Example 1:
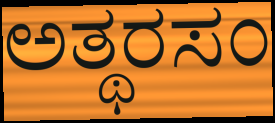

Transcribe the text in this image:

ಅತ್ಥರಸಂ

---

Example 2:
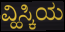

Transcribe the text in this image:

ವ್ಹಿಸ್ಕಿಯ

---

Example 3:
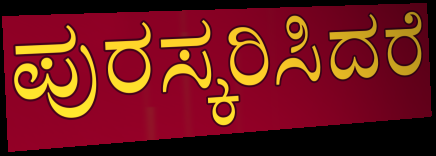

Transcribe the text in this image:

ಪುರಸ್ಕರಿಸಿದರೆ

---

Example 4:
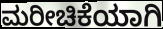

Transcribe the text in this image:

ಮರೀಚಿಕೆಯಾಗಿ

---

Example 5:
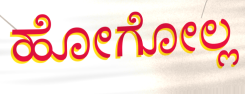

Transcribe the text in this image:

ಹೋಗೋಲ್ಲ